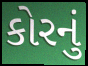
કોરનું